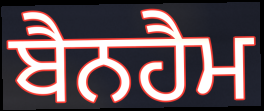
ਬੈਨਹੈਮ